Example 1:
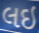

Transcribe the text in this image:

લઇ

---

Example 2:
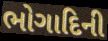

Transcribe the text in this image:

ભોગાદિની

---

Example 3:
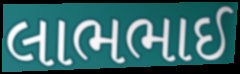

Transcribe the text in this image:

લાભભાઈ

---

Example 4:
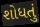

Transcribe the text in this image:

શોધતું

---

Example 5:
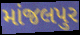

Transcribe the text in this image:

માંજલપુર